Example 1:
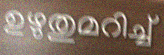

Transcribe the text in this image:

ഉഴുതുമറിച്ച്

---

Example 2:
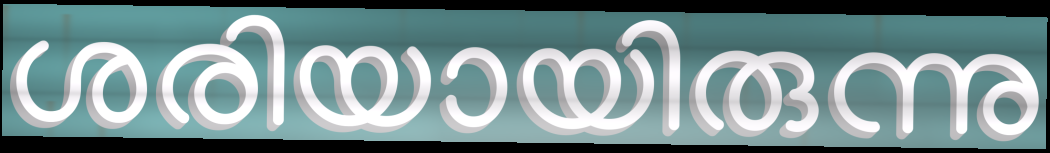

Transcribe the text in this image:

ശരിയായിരുന്നു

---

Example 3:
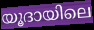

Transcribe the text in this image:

യൂദായിലെ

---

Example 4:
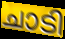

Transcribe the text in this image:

ചാടി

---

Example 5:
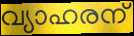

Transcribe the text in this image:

വ്യാഹരന്